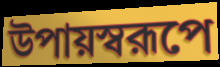
উপায়স্বরূপে